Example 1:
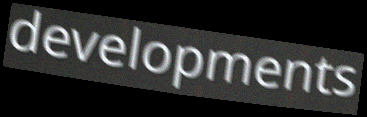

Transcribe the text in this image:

developments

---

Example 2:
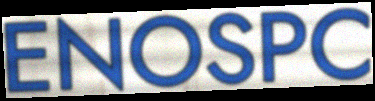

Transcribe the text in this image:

ENOSPC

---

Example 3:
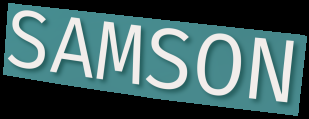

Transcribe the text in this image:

SAMSON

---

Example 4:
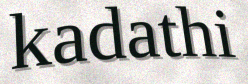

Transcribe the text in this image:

kadathi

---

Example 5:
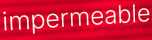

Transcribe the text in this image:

impermeable